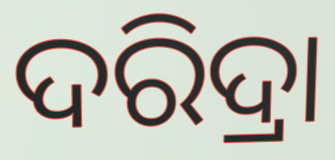
ଦରିଦ୍ରା